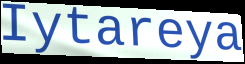
Iytareya